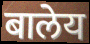
बालेय